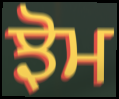
ਝੋਮ